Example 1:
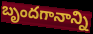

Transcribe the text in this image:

బృందగానాన్ని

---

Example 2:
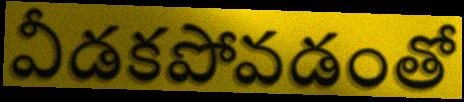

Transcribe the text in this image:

వీడకపోవడంతో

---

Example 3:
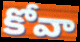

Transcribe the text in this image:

కోవా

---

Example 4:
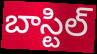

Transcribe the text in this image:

బాస్టిల్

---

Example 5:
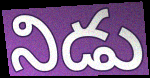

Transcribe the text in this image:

నిడు